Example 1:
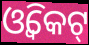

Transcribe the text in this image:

ଓ୍ଵିକେଟ୍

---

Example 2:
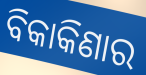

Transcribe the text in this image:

ବିକାକିଣାର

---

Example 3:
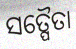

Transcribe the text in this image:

ସତ୍ପୈତା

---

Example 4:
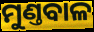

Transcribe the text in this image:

ମୁଣ୍ତବାଳ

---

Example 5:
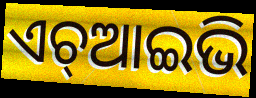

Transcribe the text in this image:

ଏଚ୍ଆଇଭି